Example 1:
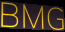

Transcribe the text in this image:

BMG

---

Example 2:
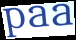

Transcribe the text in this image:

paa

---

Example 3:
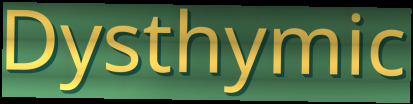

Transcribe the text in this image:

Dysthymic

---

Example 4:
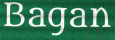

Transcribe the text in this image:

Bagan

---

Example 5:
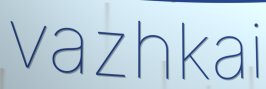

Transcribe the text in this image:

vazhkai